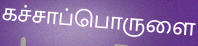
கச்சாப்பொருளை